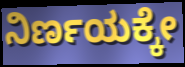
ನಿರ್ಣಯಕ್ಕೇ